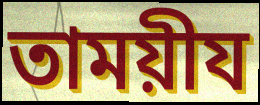
তাময়ীয